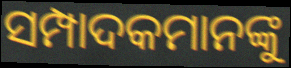
ସମ୍ପାଦକମାନଙ୍କୁ